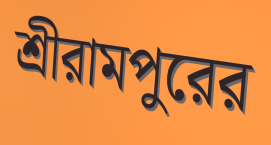
শ্রীরামপুরের